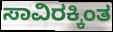
ಸಾವಿರಕ್ಕಿಂತ